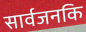
सार्वजनकि